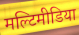
मल्टिमीडिया